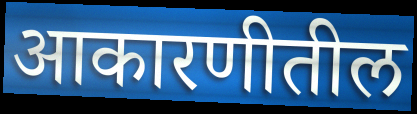
आकारणीतील